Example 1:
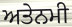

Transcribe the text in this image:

ਅਤੇਨਮੀ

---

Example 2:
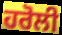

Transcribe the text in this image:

ਹਰੋਲੀ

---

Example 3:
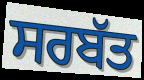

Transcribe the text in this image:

ਸਰਬੱਤ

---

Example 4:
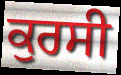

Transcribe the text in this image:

ਕੁਰਸੀ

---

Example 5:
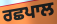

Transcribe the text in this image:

ਰਛਪਾਲ